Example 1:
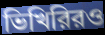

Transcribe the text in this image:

ভিখিরিরও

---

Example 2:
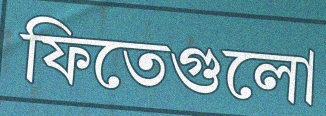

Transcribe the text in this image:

ফিতেগুলো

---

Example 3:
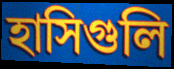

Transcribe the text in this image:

হাসিগুলি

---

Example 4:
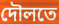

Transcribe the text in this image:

দৌলতে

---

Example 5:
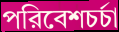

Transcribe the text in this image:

পরিবেশচর্চা